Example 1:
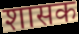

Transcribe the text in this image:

शासक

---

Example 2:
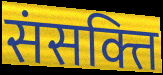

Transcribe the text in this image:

संसक्ति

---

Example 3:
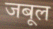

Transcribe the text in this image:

जबूल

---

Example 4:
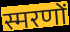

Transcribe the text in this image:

स्मरणों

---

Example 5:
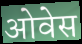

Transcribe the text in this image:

ओवेस